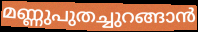
മണ്ണുപുതച്ചുറങ്ങാൻ